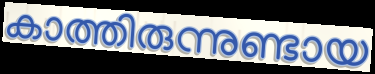
കാത്തിരുന്നുണ്ടായ